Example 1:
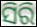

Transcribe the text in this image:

ସିରି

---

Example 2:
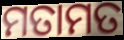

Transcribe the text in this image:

ମତାମତ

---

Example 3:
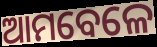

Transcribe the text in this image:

ଆମବେଳେ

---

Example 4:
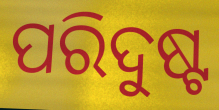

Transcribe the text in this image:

ପରିଦୁଷ୍ଟ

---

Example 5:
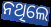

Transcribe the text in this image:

ନଥିଲେ